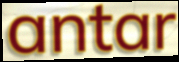
antar